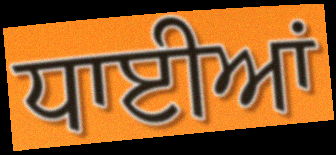
ਧਾਈਆਂ